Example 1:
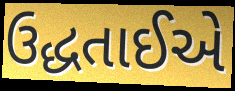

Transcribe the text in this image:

ઉદ્ધતાઈએ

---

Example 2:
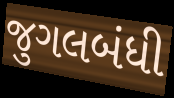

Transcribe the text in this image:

જુગલબંધી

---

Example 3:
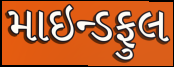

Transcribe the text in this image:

માઇન્ડફુલ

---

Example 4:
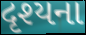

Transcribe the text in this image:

દૃશ્યના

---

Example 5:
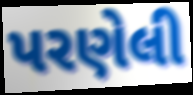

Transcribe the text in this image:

પરણેલી